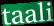
taali